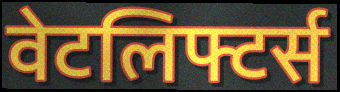
वेटलिफ्टर्स